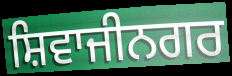
ਸ਼ਿਵਾਜੀਨਗਰ